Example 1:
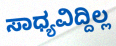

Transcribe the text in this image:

ಸಾಧ್ಯವಿದ್ದಿಲ್ಲ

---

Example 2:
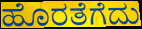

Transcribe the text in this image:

ಹೊರತೆಗೆದು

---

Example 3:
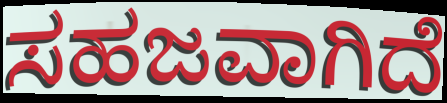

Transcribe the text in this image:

ಸಹಜವಾಗಿದೆ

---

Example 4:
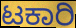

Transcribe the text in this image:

ಟಕಾರಿ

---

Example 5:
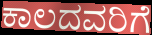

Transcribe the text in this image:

ಕಾಲದವರಿಗೆ